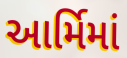
આર્મિમાં